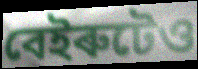
বেইৰুটেও